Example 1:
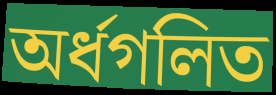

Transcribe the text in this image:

অর্ধগলিত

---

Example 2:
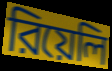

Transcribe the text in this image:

রিয়েলি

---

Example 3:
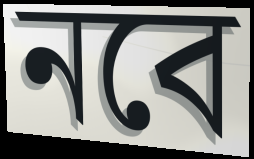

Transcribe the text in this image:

নবে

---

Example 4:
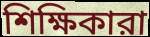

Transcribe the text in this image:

শিক্ষিকারা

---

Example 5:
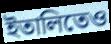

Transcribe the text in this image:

ইতালিতেও